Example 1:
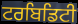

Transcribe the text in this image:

ਟਰਬਿਡਿਟੀ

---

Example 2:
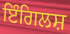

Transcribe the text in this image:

ਇੰਗਿਲਸ਼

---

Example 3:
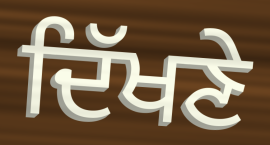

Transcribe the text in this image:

ਦਿੱਖਣੇ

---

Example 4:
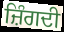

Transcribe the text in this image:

ਜ਼ਿੰਗਦੀ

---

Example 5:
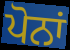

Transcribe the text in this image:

ਪੋਨਾਂ